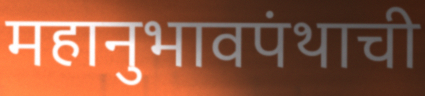
महानुभावपंथाची